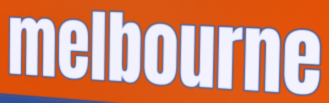
melbourne